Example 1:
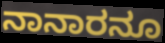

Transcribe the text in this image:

ನಾನಾರನೂ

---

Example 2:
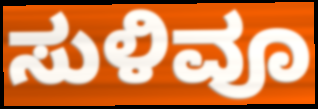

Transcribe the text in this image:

ಸುಳಿವೂ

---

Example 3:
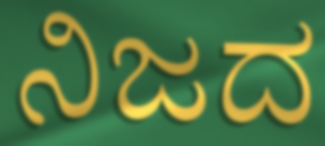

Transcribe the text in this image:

ನಿಜದ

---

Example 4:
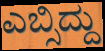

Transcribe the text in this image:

ಎಬ್ಸಿದ್ದು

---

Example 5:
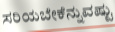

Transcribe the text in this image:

ಸರಿಯಬೇಕೆನ್ನುವಷ್ಟು